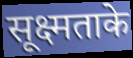
सूक्ष्मताके